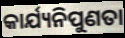
କାର୍ଯ୍ୟନିପୁଣତା